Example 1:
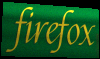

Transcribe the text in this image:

firefox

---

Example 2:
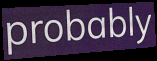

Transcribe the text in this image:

probably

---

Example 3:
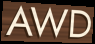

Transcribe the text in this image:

AWD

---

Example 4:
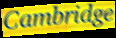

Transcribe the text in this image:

Cambridge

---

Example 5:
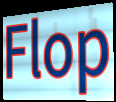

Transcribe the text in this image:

Flop